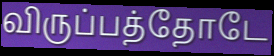
விருப்பத்தோடே